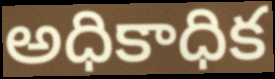
అధికాధిక